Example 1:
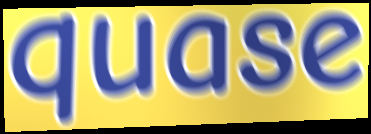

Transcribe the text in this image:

quase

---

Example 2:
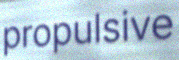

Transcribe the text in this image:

propulsive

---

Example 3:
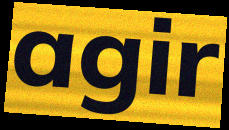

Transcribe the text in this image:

agir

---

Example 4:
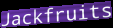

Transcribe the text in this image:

Jackfruits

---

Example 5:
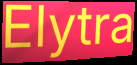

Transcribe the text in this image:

Elytra